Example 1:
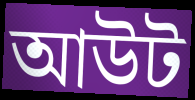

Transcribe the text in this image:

আউট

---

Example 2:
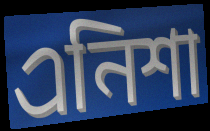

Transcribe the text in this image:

এনিশা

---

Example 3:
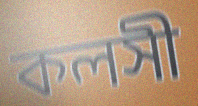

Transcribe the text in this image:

কলসী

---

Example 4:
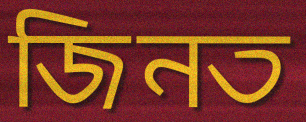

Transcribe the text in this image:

জিনত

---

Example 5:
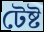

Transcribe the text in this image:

টেষ্ট